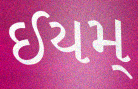
ઈયમ્